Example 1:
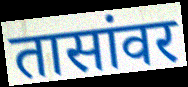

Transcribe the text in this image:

तासांवर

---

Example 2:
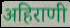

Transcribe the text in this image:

अहिराणी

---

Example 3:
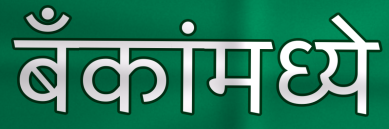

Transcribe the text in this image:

बँकांमध्ये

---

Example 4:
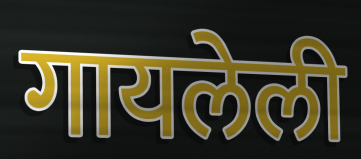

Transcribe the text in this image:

गायलेली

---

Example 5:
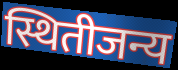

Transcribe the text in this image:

स्थितीजन्य